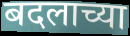
बदलाच्या